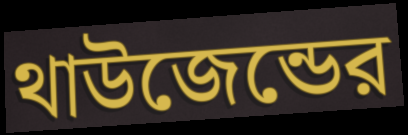
থাউজেন্ডের